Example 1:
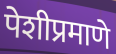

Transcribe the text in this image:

पेशीप्रमाणे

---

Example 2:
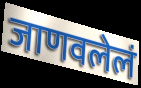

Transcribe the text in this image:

जाणवलेलं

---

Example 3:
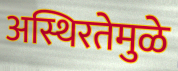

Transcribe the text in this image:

अस्थिरतेमुळे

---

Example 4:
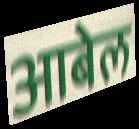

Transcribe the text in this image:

आबेल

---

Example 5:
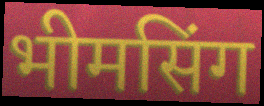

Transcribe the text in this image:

भीमसिंग